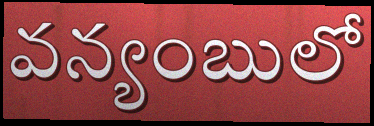
వన్యంబులో